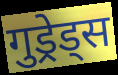
गुड्रेड्स